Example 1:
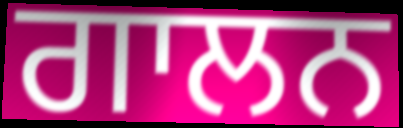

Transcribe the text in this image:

ਗਾਲਨ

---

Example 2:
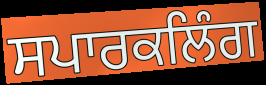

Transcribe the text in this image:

ਸਪਾਰਕਲਿੰਗ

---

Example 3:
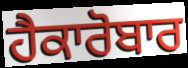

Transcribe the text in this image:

ਹੈਕਾਰੋਬਾਰ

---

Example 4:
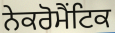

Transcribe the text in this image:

ਨੇਕਰੋਮੈਂਟਿਕ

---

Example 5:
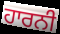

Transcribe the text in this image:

ਹਾਰਨੀ